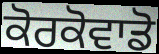
ਕੋਰਕੋਵਾਡੋ